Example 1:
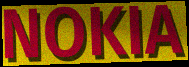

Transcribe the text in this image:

NOKIA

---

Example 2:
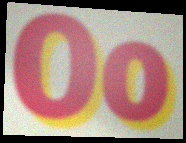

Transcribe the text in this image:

Oo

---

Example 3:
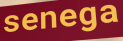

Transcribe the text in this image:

senega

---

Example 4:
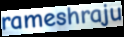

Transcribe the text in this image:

rameshraju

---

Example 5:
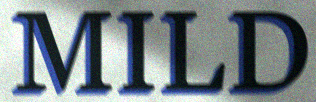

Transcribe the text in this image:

MILD